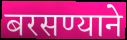
बरसण्याने